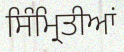
ਸਿੰਮ੍ਰਿਤੀਆਂ